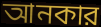
আনকার